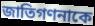
জাতিগণনাকে